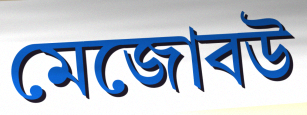
মেজোবউ